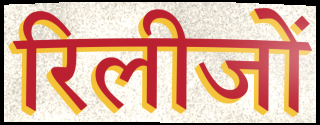
रिलीजों